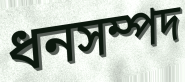
ধনসম্পদ